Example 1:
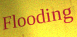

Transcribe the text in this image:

Flooding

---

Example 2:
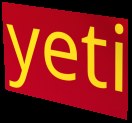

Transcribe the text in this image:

yeti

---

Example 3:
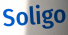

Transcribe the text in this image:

Soligo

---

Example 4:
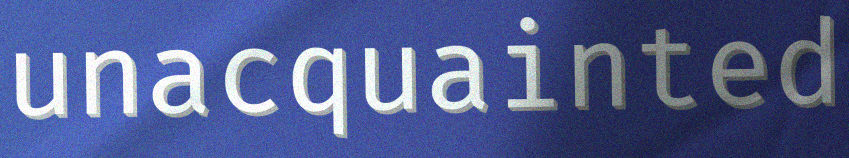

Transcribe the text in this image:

unacquainted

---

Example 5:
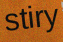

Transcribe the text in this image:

stiry